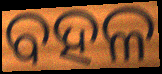
ବହଳ